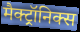
मैक्ट्रॉनिक्स